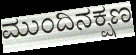
ಮುಂದಿನಕ್ಷಣ